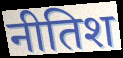
नीतिश